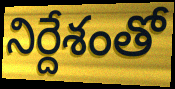
నిర్దేశంతో